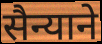
सैन्याने